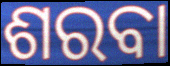
ଶରବା